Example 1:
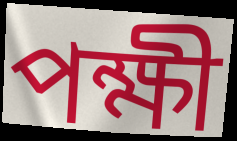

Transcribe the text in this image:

পক্ষী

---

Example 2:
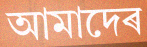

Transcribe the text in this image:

আমাদেৰ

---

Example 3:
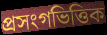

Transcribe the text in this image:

প্ৰসংগভিত্তিক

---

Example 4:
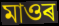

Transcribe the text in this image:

মাওৰ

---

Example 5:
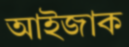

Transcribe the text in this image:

আইজাক